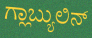
ಗ್ಲಾಬ್ಯುಲಿನ್